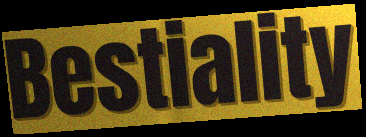
Bestiality